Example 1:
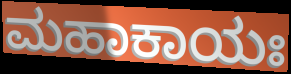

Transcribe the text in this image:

ಮಹಾಕಾಯಃ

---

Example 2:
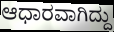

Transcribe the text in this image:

ಆಧಾರವಾಗಿದ್ದು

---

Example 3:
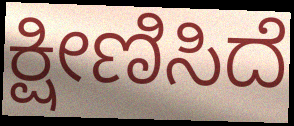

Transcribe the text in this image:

ಕ್ಷೀಣಿಸಿದೆ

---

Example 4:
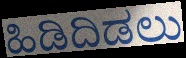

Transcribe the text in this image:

ಹಿಡಿದಿಡಲು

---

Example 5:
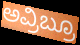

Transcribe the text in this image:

ಅವ್ರಿಬ್ರೂ